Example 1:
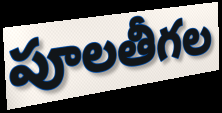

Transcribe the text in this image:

పూలతీగల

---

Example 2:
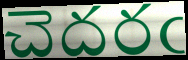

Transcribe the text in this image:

చెదరఁ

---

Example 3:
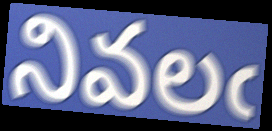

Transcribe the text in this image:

నివలఁ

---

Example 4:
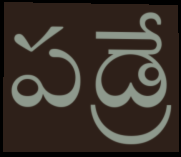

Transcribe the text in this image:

పడ్రే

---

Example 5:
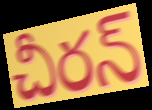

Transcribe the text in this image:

చీరన్